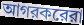
আগরকরেরা